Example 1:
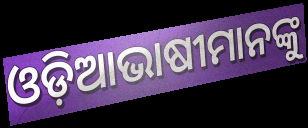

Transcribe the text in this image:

ଓଡ଼ିଆଭାଷୀମାନଙ୍କୁ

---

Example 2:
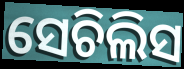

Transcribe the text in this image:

ସେଚିଲିସ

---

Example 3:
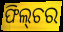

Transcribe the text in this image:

ଫିଲ୍‌ଚର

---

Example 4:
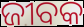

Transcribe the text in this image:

ଜୀବକ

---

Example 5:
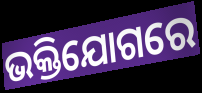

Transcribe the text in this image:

ଭକ୍ତିଯୋଗରେ